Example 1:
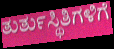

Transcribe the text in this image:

ತುರ್ತುಸ್ಥಿತಿಗಳಿಗೆ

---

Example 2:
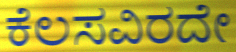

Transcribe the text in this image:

ಕೆಲಸವಿರದೇ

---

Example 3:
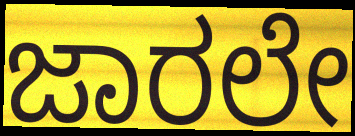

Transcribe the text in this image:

ಜಾರಲೇ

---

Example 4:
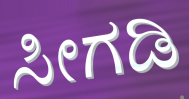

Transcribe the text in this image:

ಸೀಗಡಿ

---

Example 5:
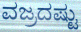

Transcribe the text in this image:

ವಜ್ರದಷ್ಟು